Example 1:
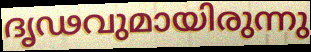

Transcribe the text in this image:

ദൃഢവുമായിരുന്നു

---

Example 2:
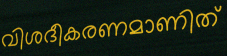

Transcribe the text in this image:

വിശദീകരണമാണിത്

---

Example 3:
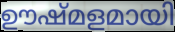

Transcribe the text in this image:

ഊഷ്മളമായി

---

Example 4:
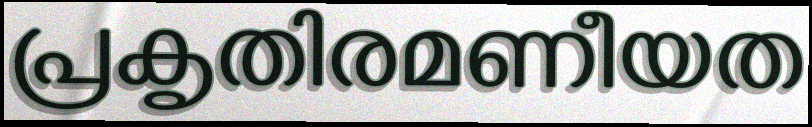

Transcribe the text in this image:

പ്രകൃതിരമണീയത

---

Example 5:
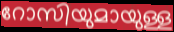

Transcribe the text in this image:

റോസിയുമായുള്ള